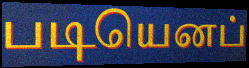
படியெனப்